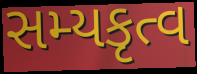
સમ્યકૃત્વ